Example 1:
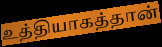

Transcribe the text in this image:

உத்தியாகத்தான்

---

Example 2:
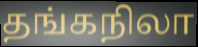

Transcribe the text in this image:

தங்கநிலா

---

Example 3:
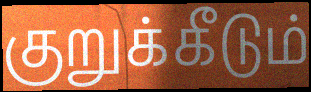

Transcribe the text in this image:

குறுக்கீடும்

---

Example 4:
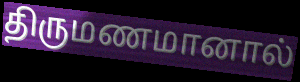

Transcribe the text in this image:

திருமணமானால்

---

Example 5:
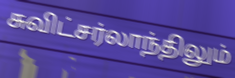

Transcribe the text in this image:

சுவிட்சர்லாந்திலும்